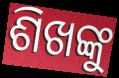
ଶିଖଙ୍କୁ